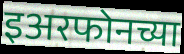
इअरफोनच्या